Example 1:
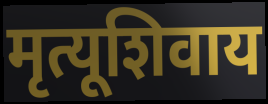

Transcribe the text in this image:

मृत्यूशिवाय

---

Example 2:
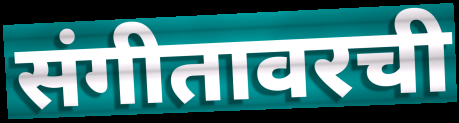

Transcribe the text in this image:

संगीतावरची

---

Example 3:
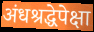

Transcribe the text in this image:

अंधश्रद्धेपेक्षा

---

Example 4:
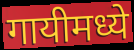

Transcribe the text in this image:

गायीमध्ये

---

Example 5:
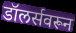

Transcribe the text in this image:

डॉलर्सवरून